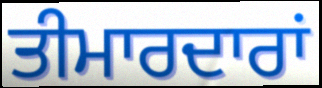
ਤੀਮਾਰਦਾਰਾਂ